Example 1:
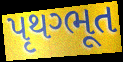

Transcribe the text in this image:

પૃથગ્ભૂત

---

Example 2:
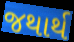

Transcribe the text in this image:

જથાર્થ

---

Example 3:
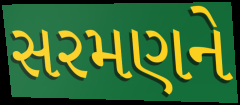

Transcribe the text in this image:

સરમણને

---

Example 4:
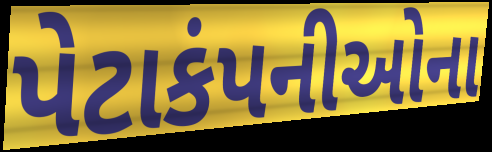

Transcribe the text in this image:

પેટાકંપનીઓના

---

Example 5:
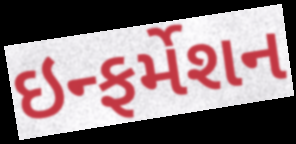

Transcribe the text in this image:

ઇન્ફર્મેશન